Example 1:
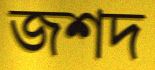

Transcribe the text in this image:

জশদ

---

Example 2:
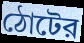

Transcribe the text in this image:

ঠোটের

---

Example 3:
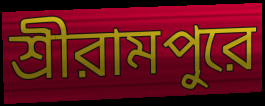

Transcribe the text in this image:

শ্রীরামপুরে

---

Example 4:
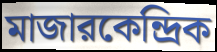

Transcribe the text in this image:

মাজারকেন্দ্রিক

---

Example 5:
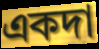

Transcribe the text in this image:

একদা